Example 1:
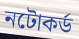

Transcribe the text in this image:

নটোকর্ড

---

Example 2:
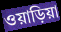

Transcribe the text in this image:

ওয়াড়িয়া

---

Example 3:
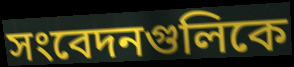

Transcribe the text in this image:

সংবেদনগুলিকে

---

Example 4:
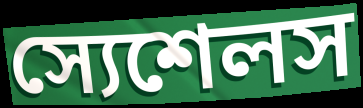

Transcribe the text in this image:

স্যেশেলস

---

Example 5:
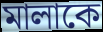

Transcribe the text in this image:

মালাকে